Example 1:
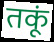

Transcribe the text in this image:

तकूं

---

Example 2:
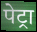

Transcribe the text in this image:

पेट्रा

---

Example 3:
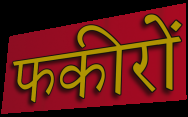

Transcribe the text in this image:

फकीरों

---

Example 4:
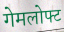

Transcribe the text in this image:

गेमलोफ्ट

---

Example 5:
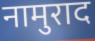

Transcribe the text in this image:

नामुराद